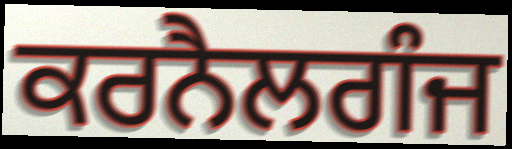
ਕਰਨੈਲਗੰਜ